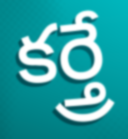
కర్త్రే